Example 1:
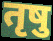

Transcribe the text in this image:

तृषु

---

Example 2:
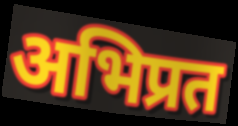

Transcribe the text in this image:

अभिप्रत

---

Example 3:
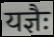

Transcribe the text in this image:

यज्ञैः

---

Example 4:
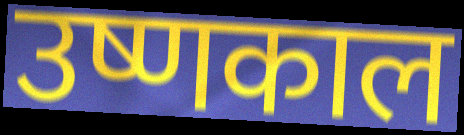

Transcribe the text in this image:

उष्णकाल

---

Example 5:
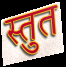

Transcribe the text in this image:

स्तुत